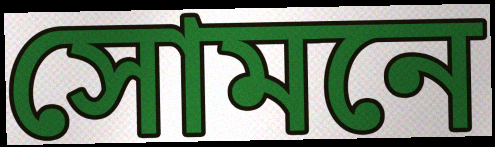
সোমনে